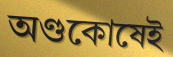
অণ্ডকোষেই